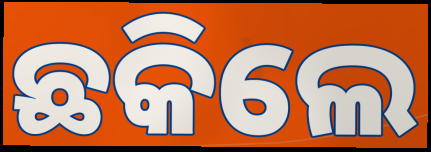
ଛକିଲେ